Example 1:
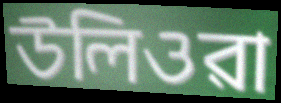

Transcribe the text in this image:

উলিওৱা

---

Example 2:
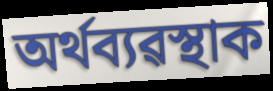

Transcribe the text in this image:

অৰ্থব্যৱস্থাক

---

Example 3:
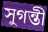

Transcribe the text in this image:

সুগন্তী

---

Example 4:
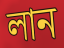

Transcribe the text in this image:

লান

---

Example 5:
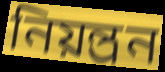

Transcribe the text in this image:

নিয়ন্ত্ৰন